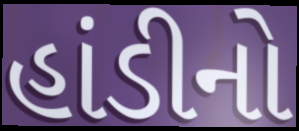
હાંડીનો